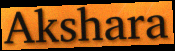
Akshara